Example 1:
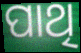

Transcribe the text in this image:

ପାଥି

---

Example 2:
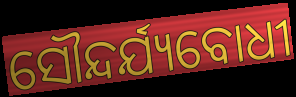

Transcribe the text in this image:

ସୌନ୍ଦର୍ଯ୍ୟବୋଧୀ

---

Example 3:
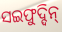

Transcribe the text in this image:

ସଇଫୁଦ୍ଦିନ୍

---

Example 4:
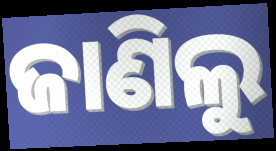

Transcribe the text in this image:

ଜାଣିଲୁ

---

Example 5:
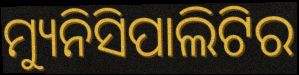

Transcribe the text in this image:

ମ୍ୟୁନିସିପାଲିଟିର